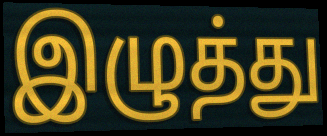
இழுத்து